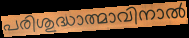
പരിശുദ്ധാത്മാവിനാൽ